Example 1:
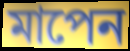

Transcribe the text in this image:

মাপেন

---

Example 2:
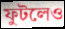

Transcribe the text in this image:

ফুটলেও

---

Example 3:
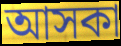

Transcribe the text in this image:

আসকা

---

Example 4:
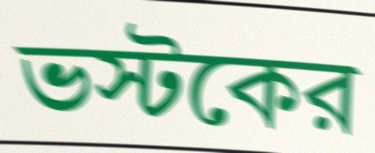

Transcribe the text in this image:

ভস্টকের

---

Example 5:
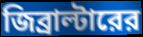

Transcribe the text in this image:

জিব্রাল্টারের